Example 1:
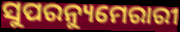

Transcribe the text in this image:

ସୁପରନ୍ୟୁମେରାରୀ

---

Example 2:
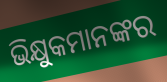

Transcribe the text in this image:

ଭିକ୍ଷୁକମାନଙ୍କର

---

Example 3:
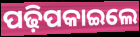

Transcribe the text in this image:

ପଢ଼ିପକାଇଲେ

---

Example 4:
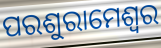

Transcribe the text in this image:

ପରଶୁରାମେଶ୍ୱର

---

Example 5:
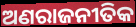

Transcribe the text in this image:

ଅଣରାଜନୀତିକ